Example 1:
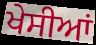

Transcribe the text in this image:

ਖੇਸੀਆਂ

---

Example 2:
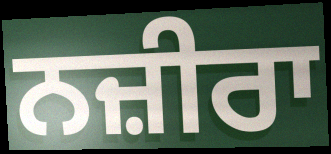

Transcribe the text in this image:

ਨਜ਼ੀਰਾ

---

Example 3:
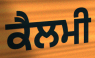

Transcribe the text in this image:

ਕੈਲਮੀ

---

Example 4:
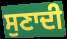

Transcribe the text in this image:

ਸੁਣਾਦੀ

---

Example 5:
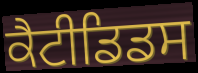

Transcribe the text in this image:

ਕੈਟੀਡਿਡਸ